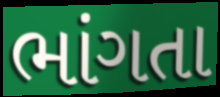
ભાંગતા